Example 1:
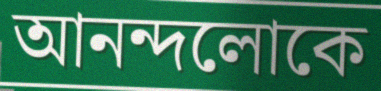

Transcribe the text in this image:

আনন্দলোকে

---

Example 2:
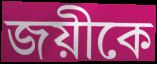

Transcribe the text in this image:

জয়ীকে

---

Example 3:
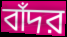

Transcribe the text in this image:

বাঁদর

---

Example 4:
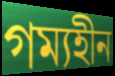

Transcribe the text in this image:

গম্যহীন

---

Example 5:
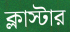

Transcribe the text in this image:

ক্লাস্টার